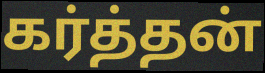
கர்த்தன்